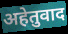
अहेतुवाद